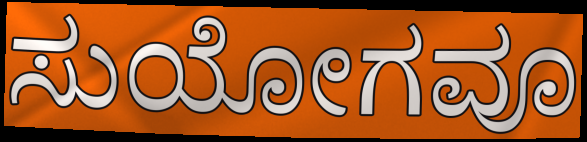
ಸುಯೋಗವೂ